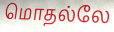
மொதல்லே